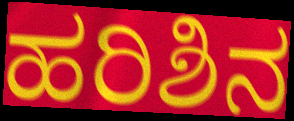
ಹರಿಶಿನ